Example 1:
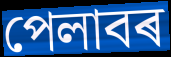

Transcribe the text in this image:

পেলাবৰ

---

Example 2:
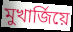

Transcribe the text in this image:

মুখাৰ্জিয়ে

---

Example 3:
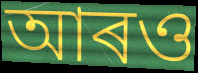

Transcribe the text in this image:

আৰও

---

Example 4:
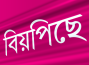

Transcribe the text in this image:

বিয়পিছে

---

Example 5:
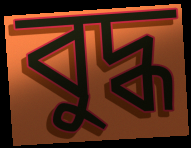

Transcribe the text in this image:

বুদ্ধ